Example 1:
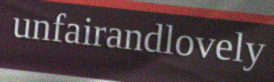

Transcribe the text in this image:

unfairandlovely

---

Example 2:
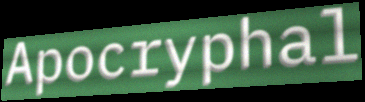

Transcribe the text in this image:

Apocryphal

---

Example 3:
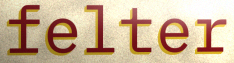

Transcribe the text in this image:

felter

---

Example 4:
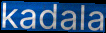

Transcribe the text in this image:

kadala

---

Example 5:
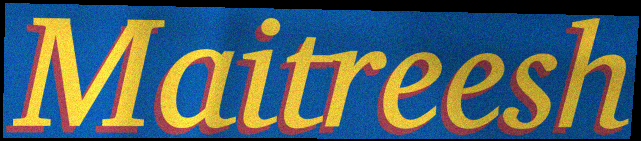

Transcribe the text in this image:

Maitreesh